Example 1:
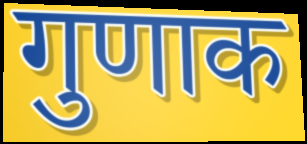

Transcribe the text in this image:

गुणाक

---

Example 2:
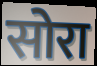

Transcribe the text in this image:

सोरा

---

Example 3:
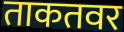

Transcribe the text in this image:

ताकतवर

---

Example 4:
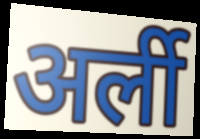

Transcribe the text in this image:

अर्ली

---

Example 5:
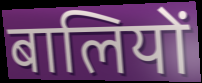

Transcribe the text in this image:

बालियों